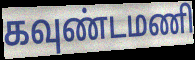
கவுண்டமணி